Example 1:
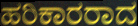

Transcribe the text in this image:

ಹರಿಕಾರರಾದ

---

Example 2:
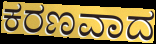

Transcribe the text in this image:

ಕರಣವಾದ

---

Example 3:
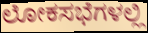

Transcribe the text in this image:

ಲೋಕಸಭೆಗಳಲ್ಲಿ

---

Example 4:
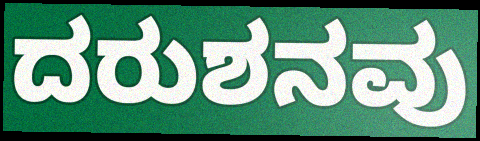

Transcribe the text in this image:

ದರುಶನವು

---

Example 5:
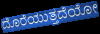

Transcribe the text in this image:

ದೊರೆಯುತ್ತದೆಯೋ